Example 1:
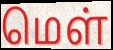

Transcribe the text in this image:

மெள்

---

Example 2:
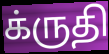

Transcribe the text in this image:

க்ருதி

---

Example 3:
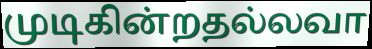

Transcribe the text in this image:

முடிகின்றதல்லவா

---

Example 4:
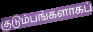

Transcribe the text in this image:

குடும்பங்களாகப்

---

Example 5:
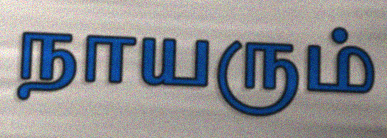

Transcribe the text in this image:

நாயரும்